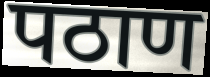
पठाण